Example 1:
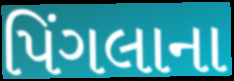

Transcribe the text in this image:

પિંગલાના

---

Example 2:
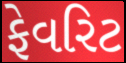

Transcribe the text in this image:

ફેવરિટ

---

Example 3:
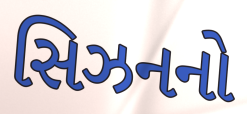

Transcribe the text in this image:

સિઝનનો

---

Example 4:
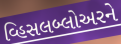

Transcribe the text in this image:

વ્હિસલબ્લોઅરને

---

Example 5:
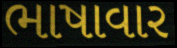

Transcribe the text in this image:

ભાષાવાર